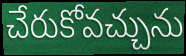
చేరుకోవచ్చును